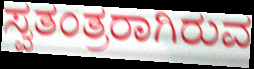
ಸ್ವತಂತ್ರರಾಗಿರುವ